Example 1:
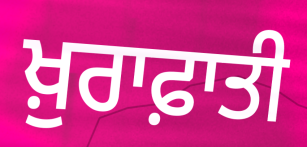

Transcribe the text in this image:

ਖ਼ੁਰਾਫ਼ਾਤੀ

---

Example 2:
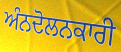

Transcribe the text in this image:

ਅੰਨਦੋਲਨਕਾਰੀ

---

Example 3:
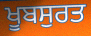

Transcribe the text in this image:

ਖੂਬਸੁਰਤ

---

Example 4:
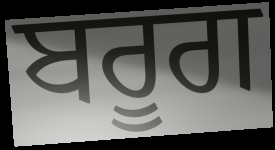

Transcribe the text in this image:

ਬਰੂਗ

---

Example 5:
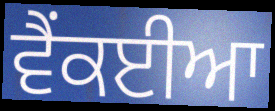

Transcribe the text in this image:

ਵੈਂਕਈਆ